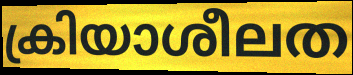
ക്രിയാശീലത